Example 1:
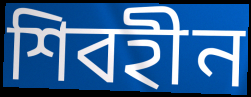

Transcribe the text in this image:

শিবহীন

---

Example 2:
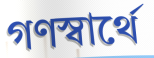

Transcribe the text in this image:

গণস্বার্থে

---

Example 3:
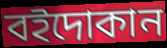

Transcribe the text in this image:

বইদোকান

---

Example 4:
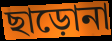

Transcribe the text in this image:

ছাড়োনা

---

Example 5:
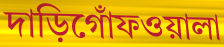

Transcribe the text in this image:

দাড়িগোঁফওয়ালা